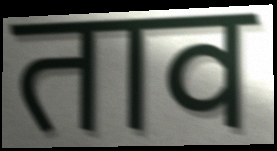
ताव